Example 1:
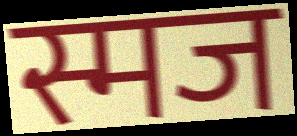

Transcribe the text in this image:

स्मज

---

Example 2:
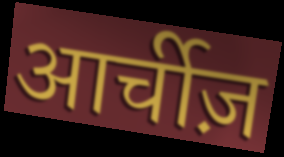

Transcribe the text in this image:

आर्चीज़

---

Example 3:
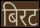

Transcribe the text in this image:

बिरट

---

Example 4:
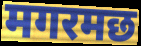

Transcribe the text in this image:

मगरमछ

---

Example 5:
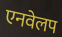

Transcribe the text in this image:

एनवेलप